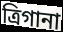
ত্রিগানা